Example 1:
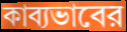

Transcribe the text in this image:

কাব্যভাবের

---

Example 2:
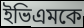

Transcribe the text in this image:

ইভিএমকে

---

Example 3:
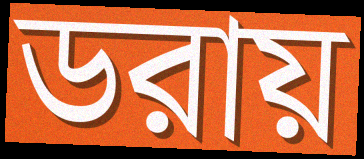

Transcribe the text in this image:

ডরায়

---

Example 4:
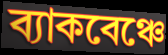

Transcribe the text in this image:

ব্যাকবেঞ্চে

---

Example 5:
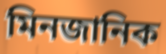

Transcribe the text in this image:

মিনজানিক